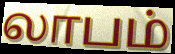
லாபம்